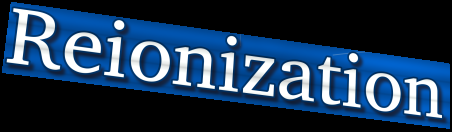
Reionization